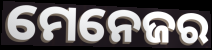
ମେନେଜର